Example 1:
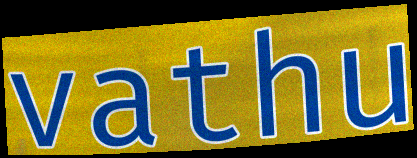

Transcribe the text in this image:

vathu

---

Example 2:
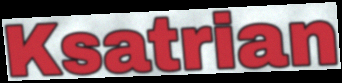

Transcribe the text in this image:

Ksatrian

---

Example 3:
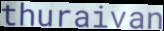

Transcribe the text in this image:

thuraivan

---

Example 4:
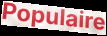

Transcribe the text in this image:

Populaire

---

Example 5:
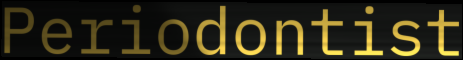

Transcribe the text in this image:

Periodontist